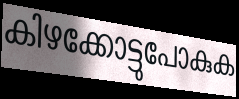
കിഴക്കോട്ടുപോകുക